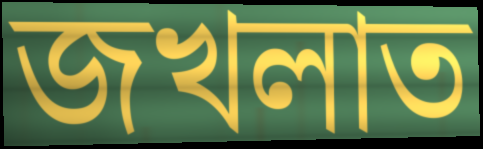
জখলাত